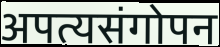
अपत्यसंगोपन